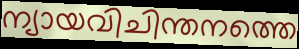
ന്യായവിചിന്തനത്തെ